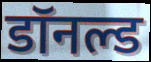
डॉनल्ड